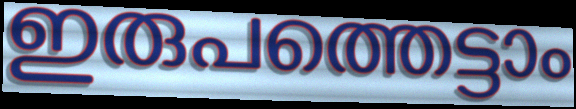
ഇരുപത്തെട്ടാം